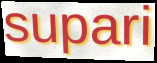
supari